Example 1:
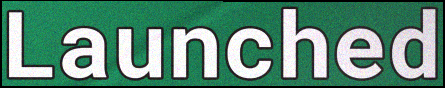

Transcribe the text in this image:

Launched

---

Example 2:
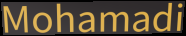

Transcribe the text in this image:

Mohamadi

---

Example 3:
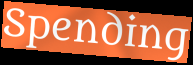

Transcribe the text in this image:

Spending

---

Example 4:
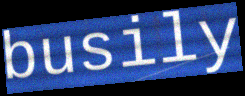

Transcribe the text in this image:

busily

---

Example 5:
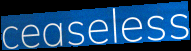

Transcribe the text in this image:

ceaseless